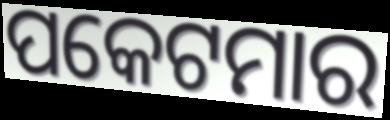
ପକେଟମାର